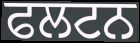
ਫਲਟਨ